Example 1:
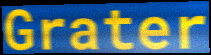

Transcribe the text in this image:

Grater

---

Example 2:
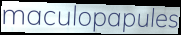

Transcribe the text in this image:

maculopapules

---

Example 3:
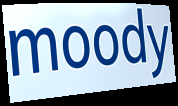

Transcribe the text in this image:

moody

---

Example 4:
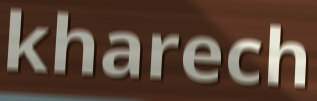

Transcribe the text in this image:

kharech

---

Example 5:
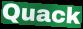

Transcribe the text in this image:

Quack